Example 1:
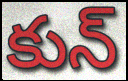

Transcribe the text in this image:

కున్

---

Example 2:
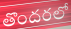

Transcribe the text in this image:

తొందరలో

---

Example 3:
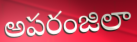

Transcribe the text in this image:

అపరంజిలా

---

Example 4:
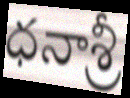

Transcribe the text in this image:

ధనాశ్రీ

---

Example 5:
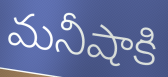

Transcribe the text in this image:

మనీషాకి